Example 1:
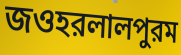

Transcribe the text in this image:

জওহরলালপুরম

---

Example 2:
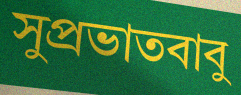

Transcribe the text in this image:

সুপ্রভাতবাবু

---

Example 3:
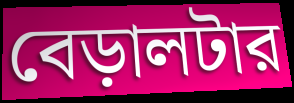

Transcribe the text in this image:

বেড়ালটার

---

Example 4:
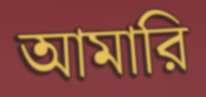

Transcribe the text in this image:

আমারি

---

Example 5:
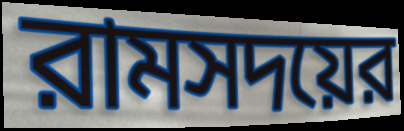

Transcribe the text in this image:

রামসদয়ের